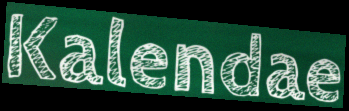
Kalendae